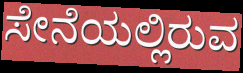
ಸೇನೆಯಲ್ಲಿರುವ